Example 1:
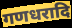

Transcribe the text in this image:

गणधरादि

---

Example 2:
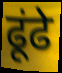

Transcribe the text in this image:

ढूंढे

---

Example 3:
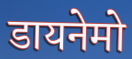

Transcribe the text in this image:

डायनेमो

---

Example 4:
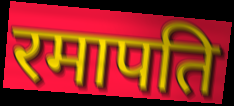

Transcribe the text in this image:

रमापति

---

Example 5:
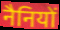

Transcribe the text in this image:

नैनियों